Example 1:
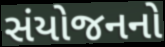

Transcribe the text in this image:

સંયોજનનો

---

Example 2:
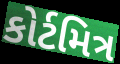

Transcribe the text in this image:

કોર્ટમિત્ર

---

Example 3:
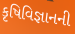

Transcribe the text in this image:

કૃષિવિજ્ઞાનની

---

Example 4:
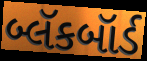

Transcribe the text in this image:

બ્લૅકબૉર્ડ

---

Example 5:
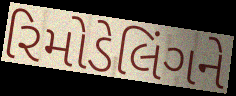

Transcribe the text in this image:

રિમોડેલિંગને